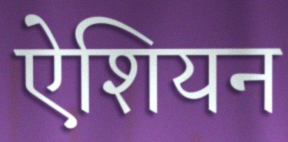
ऐशियन